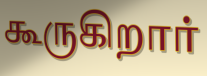
கூருகிறார்